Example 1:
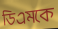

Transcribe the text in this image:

ডিএমকে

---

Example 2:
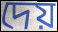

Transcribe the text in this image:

দেয়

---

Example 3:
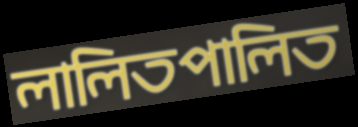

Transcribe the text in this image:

লালিতপালিত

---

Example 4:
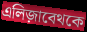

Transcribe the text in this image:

এলিজ়াবেথকে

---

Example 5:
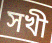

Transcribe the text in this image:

সখী